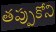
తప్పుకోని